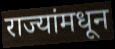
राज्यांमधून